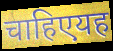
चाहिएयह